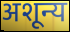
अशून्य